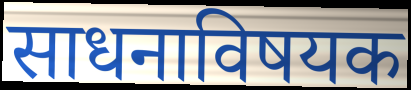
साधनाविषयक